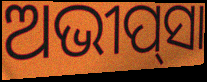
ଅଭୀପ୍‌ସା